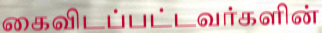
கைவிடப்பட்டவர்களின்